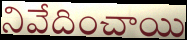
నివేదించాయి